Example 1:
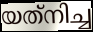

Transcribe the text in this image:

യത്‌നിച്ച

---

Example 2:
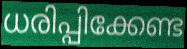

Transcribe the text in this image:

ധരിപ്പിക്കേണ്ട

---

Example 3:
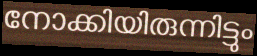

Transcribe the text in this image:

നോക്കിയിരുന്നിട്ടും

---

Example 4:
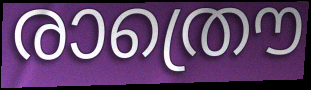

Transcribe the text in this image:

രാത്രൌ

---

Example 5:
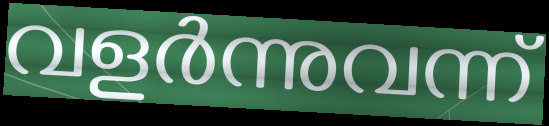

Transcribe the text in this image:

വളർന്നുവന്ന്